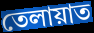
তেলায়াত